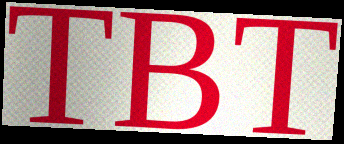
TBT